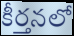
కీర్తనలో